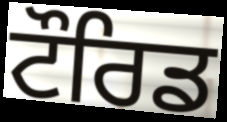
ਟੌਰਿਡ